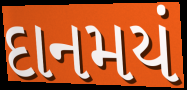
દાનમયં